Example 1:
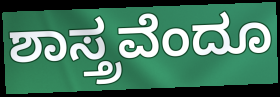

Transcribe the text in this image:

ಶಾಸ್ತ್ರವೆಂದೂ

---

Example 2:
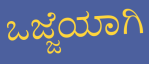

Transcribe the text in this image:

ಒಜ್ಜೆಯಾಗಿ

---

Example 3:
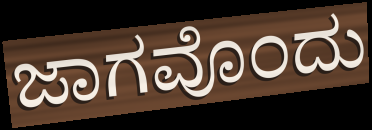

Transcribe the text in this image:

ಜಾಗವೊಂದು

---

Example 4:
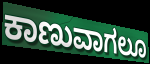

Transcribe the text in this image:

ಕಾಣುವಾಗಲೂ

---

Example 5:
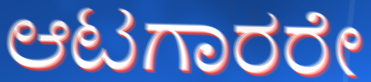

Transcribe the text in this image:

ಆಟಗಾರರೇ